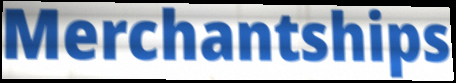
Merchantships